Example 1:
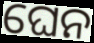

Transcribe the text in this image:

ଘେନ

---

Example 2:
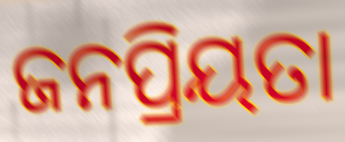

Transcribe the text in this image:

ଜନପ୍ରିୟତା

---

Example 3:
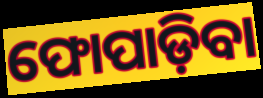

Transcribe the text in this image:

ଫୋପାଡ଼ିବା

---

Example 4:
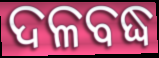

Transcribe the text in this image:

ଦଳବଦ୍ଧ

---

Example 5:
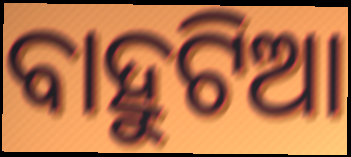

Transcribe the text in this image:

ବାହୁଟିଆ